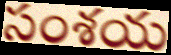
సంశయ